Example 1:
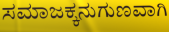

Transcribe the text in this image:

ಸಮಾಜಕ್ಕನುಗುಣವಾಗಿ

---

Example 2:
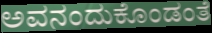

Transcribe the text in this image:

ಅವನಂದುಕೊಂಡಂತೆ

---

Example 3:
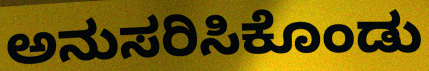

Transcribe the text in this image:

ಅನುಸರಿಸಿಕೊಂಡು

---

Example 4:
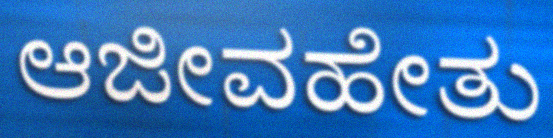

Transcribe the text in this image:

ಆಜೀವಹೇತು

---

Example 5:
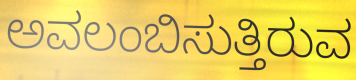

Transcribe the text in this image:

ಅವಲಂಬಿಸುತ್ತಿರುವ